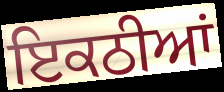
ਇਕਠੀਆਂ